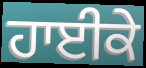
ਹਾਈਕੇ